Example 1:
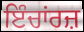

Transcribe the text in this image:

ਇੰਚਾਂਰਜ਼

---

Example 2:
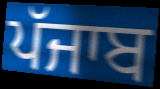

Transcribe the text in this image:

ਪੱਜਾਬ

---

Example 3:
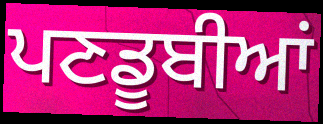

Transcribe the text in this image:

ਪਣਡੂਬੀਆਂ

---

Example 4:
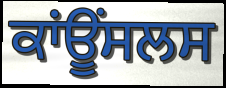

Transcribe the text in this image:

ਕਾਂਊਂਸਲਸ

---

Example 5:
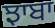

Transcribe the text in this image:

ਝਾਬਾ